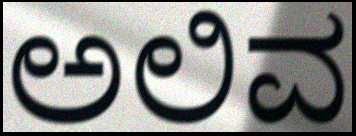
ಅಲಿವ